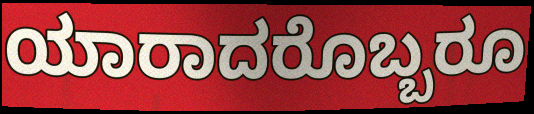
ಯಾರಾದರೊಬ್ಬರೂ